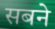
सबने